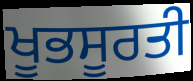
ਖੂਭਸੂਰਤੀ